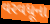
વરવધૂના